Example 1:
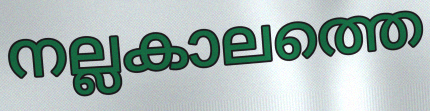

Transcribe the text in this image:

നല്ലകാലത്തെ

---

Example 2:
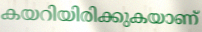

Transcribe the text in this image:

കയറിയിരിക്കുകയാണ്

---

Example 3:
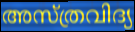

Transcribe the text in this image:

അസ്ത്രവിദ്യ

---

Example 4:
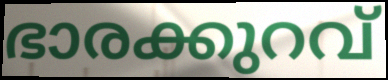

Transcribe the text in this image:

ഭാരക്കുറവ്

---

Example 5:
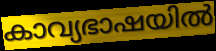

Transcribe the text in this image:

കാവ്യഭാഷയിൽ